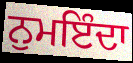
ਨੁਮਇੰਦਾ